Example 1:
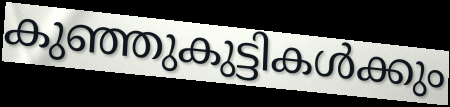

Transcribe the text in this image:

കുഞ്ഞുകുട്ടികൾക്കും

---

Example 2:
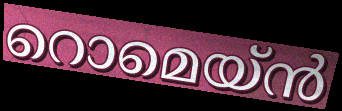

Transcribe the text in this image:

റൊമെയ്ൻ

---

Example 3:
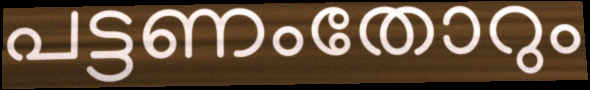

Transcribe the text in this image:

പട്ടണംതോറും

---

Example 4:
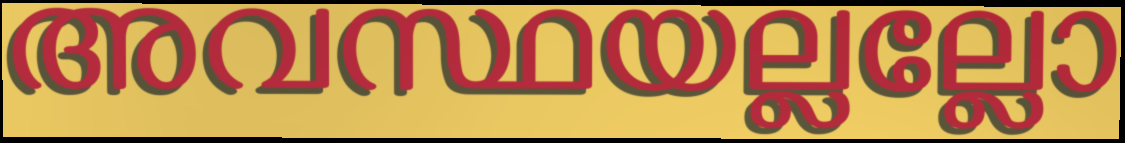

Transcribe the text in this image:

അവസ്ഥയല്ലല്ലോ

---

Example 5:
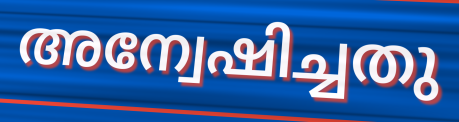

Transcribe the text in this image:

അന്വേഷിച്ചതു